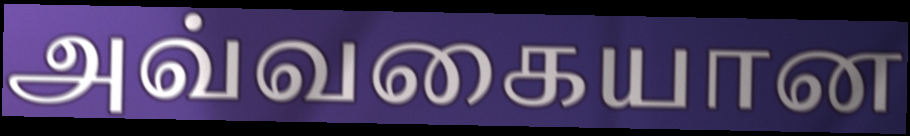
அவ்வகையான